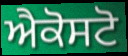
ਐਕੋਸਟੋ